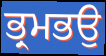
ਭ੍ਰਮਭਉ